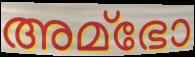
അമ്ഭോ